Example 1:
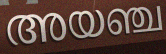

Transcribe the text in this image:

അയഞ്ച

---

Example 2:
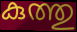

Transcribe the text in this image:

കുത്തു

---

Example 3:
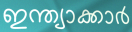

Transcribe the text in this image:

ഇന്ത്യാക്കാർ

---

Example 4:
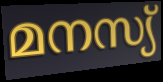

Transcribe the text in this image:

മനസ്യ്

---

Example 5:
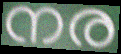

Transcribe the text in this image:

നര